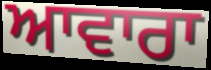
ਆਵਾਰਾ